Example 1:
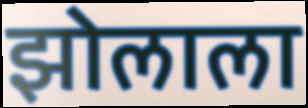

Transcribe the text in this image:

झोलाला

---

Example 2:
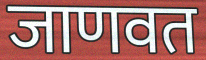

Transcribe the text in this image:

जाणवत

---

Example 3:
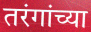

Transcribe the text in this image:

तरंगांच्या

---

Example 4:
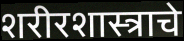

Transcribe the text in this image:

शरीरशास्त्राचे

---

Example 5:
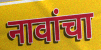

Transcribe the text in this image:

नावांचा